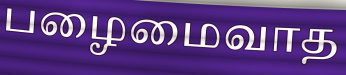
பழைமைவாத